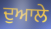
ਦੁਆਲੇ